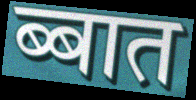
ब्बात